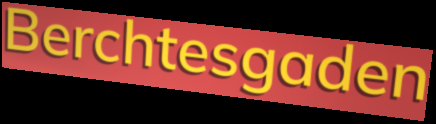
Berchtesgaden